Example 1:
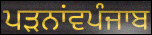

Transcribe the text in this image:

ਪੜਨਾਂਵਪੰਜਾਬ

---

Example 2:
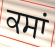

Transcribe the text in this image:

ਕਸਾਂ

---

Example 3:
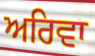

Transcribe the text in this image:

ਅਰਿਵਾ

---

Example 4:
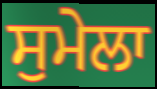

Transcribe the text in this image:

ਸੁਮੇਲਾ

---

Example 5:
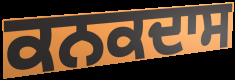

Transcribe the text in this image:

ਕਨਕਦਾਸ